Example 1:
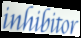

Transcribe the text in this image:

inhibitor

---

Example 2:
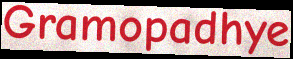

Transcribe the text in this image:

Gramopadhye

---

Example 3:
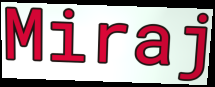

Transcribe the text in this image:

Miraj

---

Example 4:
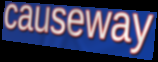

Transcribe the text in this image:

causeway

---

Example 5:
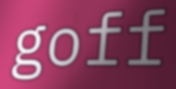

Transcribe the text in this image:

goff